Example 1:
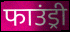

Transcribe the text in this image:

फाउंड्री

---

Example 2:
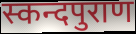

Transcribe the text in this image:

स्कन्दपुराण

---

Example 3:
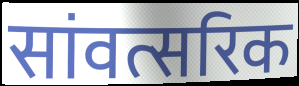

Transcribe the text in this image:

सांवत्सरिक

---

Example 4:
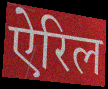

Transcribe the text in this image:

ऐरिल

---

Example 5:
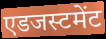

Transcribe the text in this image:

एडजस्‍टमेंट